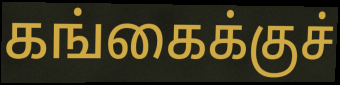
கங்கைக்குச்